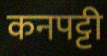
कनपट्टी